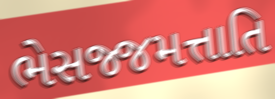
ભેસજ્જમત્તાતિ